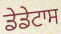
ਡੇਡੇਟਾਸ